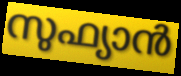
സുഫ്യാൻ